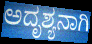
ಅದೃಶ್ಯನಾಗಿ